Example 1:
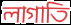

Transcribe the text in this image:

লাগাতি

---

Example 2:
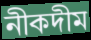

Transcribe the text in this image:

নীকদীম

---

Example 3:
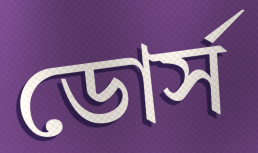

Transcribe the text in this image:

ডোর্স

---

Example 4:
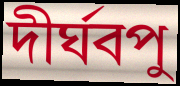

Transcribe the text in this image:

দীর্ঘবপু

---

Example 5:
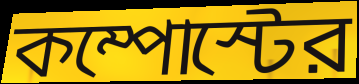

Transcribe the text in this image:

কম্পোস্টের